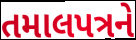
તમાલપત્રને